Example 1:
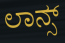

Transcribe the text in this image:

ಲಾನ್ಸ್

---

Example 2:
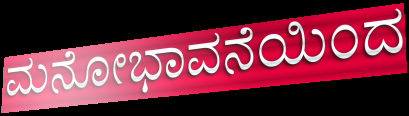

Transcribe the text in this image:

ಮನೋಭಾವನೆಯಿಂದ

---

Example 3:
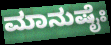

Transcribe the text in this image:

ಮಾನುಷೈಃ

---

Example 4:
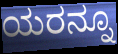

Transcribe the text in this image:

ಯರನ್ನೂ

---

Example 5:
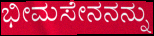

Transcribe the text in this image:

ಭೀಮಸೇನನನ್ನು